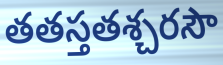
తతస్తతశ్చరసౌ